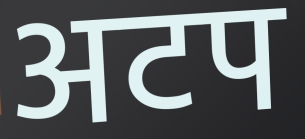
अटप